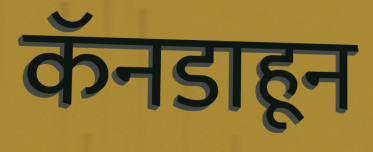
कॅनडाहून